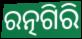
ରତ୍ନଗିରି